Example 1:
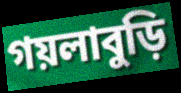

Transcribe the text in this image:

গয়লাবুড়ি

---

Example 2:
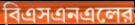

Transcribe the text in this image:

বিএসএনএলের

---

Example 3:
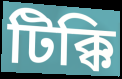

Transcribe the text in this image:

টিক্কি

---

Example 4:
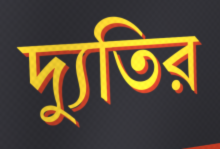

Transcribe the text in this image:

দ্যুতির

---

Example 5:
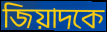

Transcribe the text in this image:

জিয়াদকে